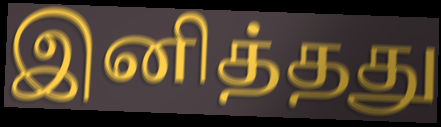
இனித்தது